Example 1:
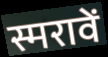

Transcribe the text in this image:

स्मरावें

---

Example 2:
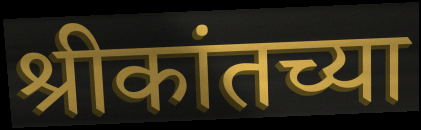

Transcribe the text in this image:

श्रीकांतच्या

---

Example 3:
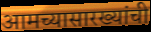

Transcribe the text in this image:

आमच्यासारख्यांची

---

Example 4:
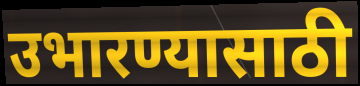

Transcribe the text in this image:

उभारण्यासाठी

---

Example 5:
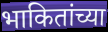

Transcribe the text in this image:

भाकितांच्या